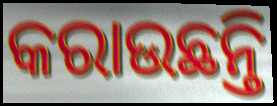
କରାଉଛନ୍ତି